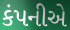
કંપનીએ